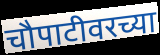
चौपाटीवरच्या